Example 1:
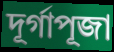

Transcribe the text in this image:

দূর্গাপূজা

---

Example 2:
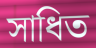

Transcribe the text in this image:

সাধিত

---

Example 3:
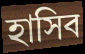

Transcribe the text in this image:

হাসিব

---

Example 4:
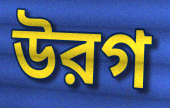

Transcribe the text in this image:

উরগ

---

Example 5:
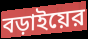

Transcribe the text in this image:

বড়াইয়ের